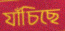
যাঁচিছে